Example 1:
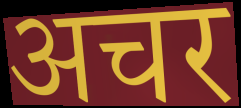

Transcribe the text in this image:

अचर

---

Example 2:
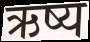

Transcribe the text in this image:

ऋष्य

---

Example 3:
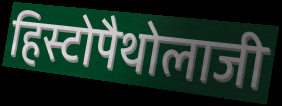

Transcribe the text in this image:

हिस्टोपैथोलाजी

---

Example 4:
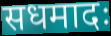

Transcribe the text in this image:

सधमादः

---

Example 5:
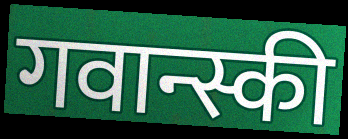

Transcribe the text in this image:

गवान्स्की